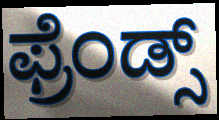
ಫ್ರೆಂಡ್ಸ್